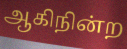
ஆகிநின்ற